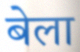
बेला